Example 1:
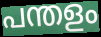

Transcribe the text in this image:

പന്തളം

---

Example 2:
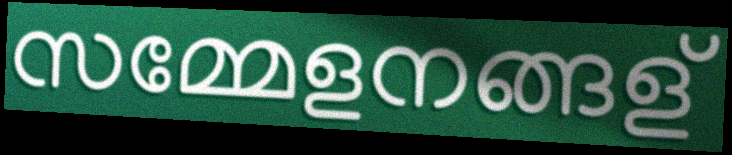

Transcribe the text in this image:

സമ്മേളനങ്ങള്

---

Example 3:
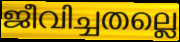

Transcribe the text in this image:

ജീവിച്ചതല്ലെ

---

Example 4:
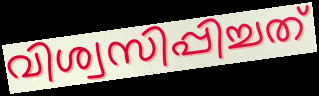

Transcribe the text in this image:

വിശ്വസിപ്പിച്ചത്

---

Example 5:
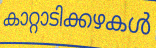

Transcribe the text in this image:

കാറ്റാടിക്കഴകൾ